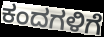
ಕಂದಗಳಿಗೆ